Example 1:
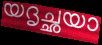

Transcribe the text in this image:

യദൃച്ഛയാ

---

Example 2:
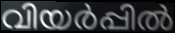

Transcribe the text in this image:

വിയർപ്പിൽ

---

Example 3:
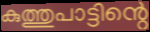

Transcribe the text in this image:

കുത്തുപാട്ടിന്റെ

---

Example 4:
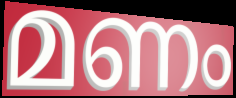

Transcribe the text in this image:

മണം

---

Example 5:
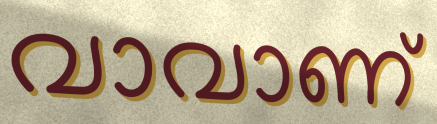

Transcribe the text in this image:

വാവാണ്